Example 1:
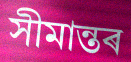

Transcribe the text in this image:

সীমান্তৰ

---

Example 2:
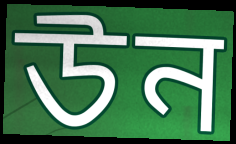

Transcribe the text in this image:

উন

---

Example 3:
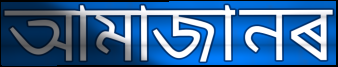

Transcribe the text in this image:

আমাজানৰ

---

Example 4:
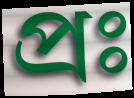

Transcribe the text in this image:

প্ৰঃ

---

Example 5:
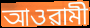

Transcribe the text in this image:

আওৱামী